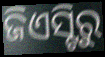
ଜିଏସ୍ଟିରୁ